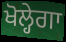
ਖੋਲ੍ਹੇਗਾ